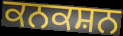
ਕਨਕਸ਼ਨ